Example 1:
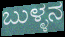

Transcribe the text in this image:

ಬುಳ್ಳನ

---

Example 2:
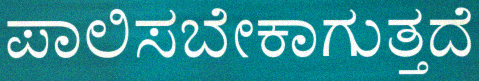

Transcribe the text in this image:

ಪಾಲಿಸಬೇಕಾಗುತ್ತದೆ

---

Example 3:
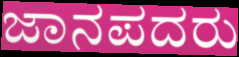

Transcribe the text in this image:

ಜಾನಪದರು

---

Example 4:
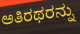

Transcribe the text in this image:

ಅತಿರಥರನ್ನು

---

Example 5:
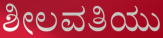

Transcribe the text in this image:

ಶೀಲವತಿಯು